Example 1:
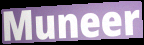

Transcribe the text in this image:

Muneer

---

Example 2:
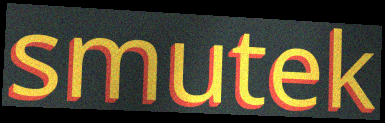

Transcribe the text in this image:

smutek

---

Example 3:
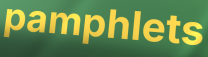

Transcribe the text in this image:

pamphlets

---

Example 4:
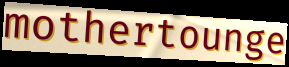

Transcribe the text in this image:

mothertounge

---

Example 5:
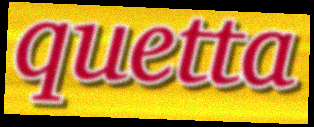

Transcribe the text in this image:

quetta